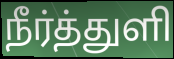
நீர்த்துளி